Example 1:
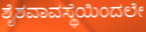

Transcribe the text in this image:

ಶೈಶವಾವಸ್ಥೆಯಿಂದಲೇ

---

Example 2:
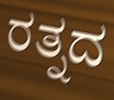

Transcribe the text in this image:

ರತ್ನದ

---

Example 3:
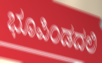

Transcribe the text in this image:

ಭೂಪಿಂಡದಲಿ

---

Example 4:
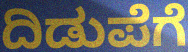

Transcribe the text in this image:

ದಿಡುಪೆಗೆ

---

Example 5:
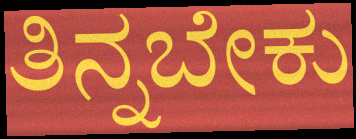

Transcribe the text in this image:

ತಿನ್ನಬೇಕು